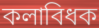
কলাবিধক